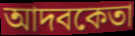
আদবকেতা